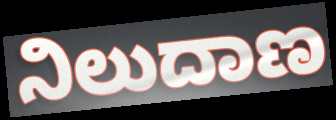
ನಿಲುದಾಣ